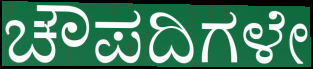
ಚೌಪದಿಗಳೇ